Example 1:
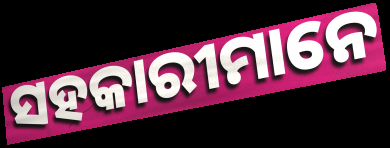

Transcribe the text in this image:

ସହକାରୀମାନେ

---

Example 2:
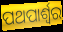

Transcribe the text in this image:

ପଥପାର୍ଶ୍ଵର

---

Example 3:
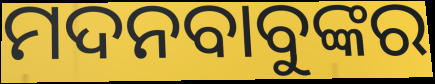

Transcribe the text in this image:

ମଦନବାବୁଙ୍କର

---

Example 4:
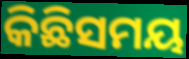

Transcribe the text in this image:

କିଛିସମୟ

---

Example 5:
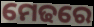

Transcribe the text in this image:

ମେଢରେ